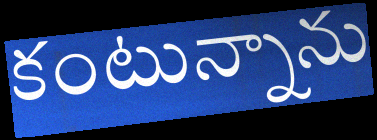
కంటున్నాను